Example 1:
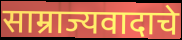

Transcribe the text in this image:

साम्राज्यवादाचे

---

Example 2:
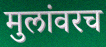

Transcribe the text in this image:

मुलांवरच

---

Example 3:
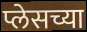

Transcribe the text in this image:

प्लेसच्या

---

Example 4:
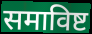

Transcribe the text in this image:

समाविष्ट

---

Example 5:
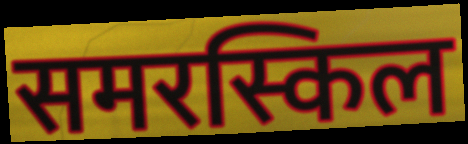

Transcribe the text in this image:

समरस्किल